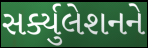
સર્ક્યુલેશનને